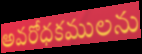
అవరోధకములను